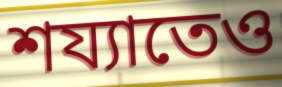
শয্যাতেও